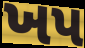
ખપ